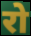
रो